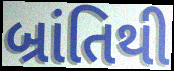
બ્રાંતિથી